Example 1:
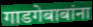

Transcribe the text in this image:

गाडगेबाबांना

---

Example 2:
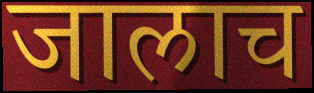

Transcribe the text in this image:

जालाच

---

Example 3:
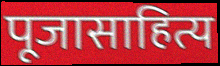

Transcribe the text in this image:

पूजासाहित्य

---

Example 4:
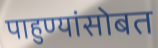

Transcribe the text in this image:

पाहुण्यांसोबत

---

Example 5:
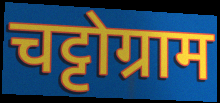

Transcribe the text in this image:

चट्टोग्राम